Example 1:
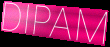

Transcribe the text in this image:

DIPAM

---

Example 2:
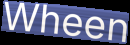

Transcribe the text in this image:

Wheen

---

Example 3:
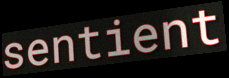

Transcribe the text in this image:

sentient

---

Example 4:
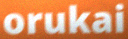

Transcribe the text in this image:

orukai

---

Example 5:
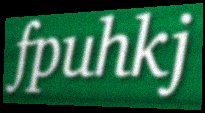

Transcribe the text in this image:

fpuhkj